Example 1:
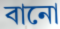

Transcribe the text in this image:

বানো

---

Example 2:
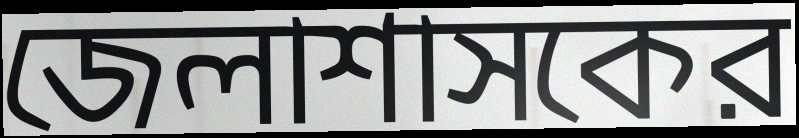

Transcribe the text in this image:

জেলাশাসকের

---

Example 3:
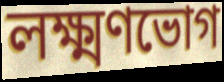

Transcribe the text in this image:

লক্ষ্মণভোগ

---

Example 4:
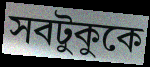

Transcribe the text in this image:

সবটুকুকে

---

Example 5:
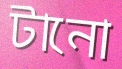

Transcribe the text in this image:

টানো